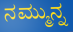
ನಮ್ಮುನ್ನ